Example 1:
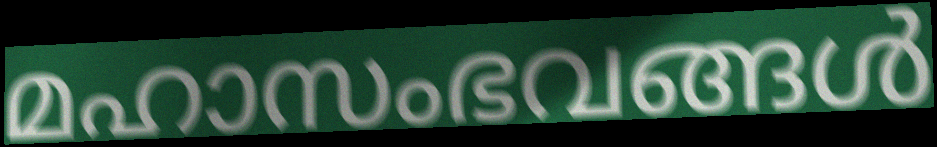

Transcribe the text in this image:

മഹാസംഭവങ്ങൾ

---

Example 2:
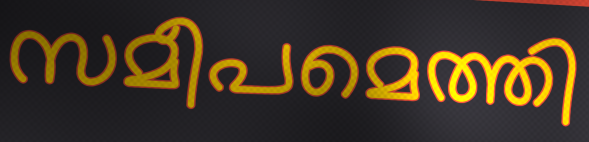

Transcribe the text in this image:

സമീപമെത്തി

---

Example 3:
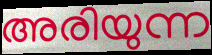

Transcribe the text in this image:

അരിയുന്ന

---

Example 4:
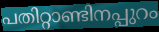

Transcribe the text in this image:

പതിറ്റാണ്ടിനപ്പുറം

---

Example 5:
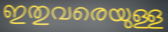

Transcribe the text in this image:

ഇതുവരെയുള്ള